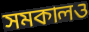
সমকালও